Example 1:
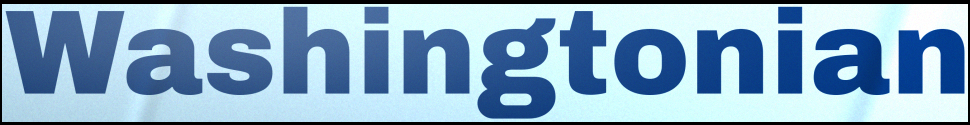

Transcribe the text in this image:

Washingtonian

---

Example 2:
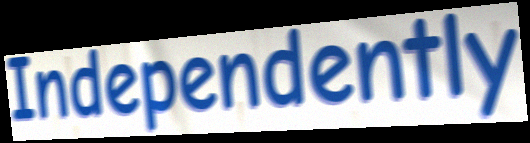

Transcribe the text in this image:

Independently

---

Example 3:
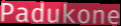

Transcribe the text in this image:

Padukone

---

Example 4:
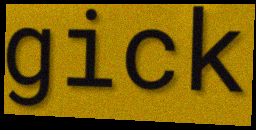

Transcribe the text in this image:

gick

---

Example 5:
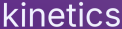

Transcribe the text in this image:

kinetics